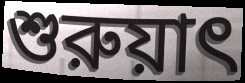
শুরুয়াৎ